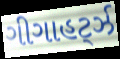
ગીગાહર્ટ્ઝ